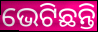
ଭେଟିଛନ୍ତି